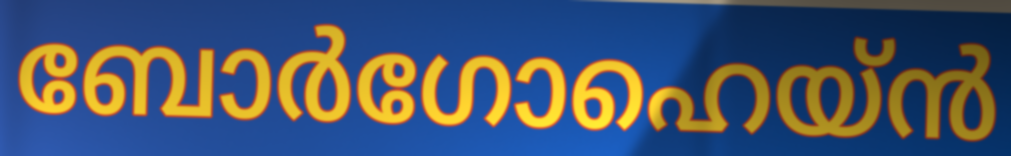
ബോർഗോഹെയ്ൻ